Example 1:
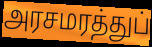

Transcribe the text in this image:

அரசமரத்துப்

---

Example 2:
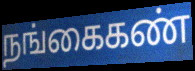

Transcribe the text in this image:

நங்கைகண்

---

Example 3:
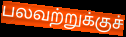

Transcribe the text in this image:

பலவற்றுக்குச்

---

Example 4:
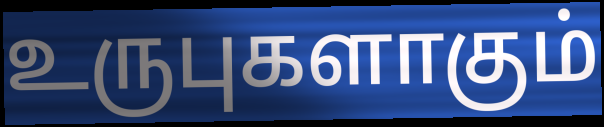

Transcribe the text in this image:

உருபுகளாகும்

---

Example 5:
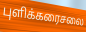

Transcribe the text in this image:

புளிக்கரைசலை